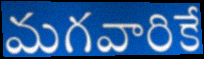
మగవారికే